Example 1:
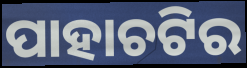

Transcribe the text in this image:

ପାହାଚଟିର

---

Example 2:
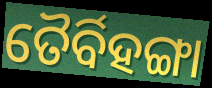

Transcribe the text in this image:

ତୈର୍ବିହଙ୍ଗା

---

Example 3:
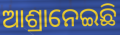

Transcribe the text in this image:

ଆଶ୍ରାନେଇଛି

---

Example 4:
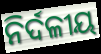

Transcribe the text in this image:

ନିର୍ଦଳୀୟ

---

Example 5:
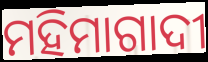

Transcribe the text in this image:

ମହିମାଗାଦୀ